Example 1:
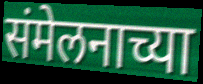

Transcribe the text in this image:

संमेलनाच्या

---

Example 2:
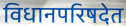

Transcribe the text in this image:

विधानपरिषदेत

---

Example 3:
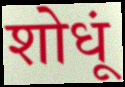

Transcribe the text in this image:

शोधूं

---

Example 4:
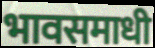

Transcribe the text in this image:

भावसमाधी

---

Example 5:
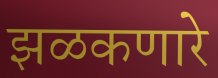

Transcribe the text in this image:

झळकणारे